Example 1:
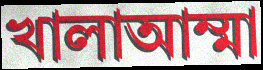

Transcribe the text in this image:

খালাআম্মা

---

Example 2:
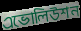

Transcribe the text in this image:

এভোলিউশন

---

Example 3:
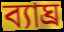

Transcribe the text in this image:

ব্যাঘ্র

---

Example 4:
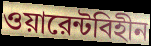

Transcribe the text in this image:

ওয়ারেন্টবিহীন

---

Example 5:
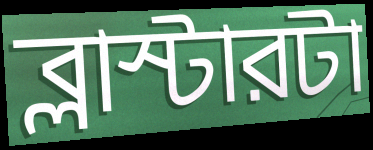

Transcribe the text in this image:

ব্লাস্টারটা